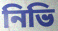
নিভি